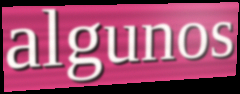
algunos